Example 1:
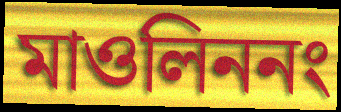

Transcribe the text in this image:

মাওলিননং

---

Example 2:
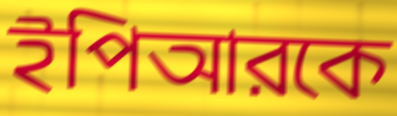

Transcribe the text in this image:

ইপিআরকে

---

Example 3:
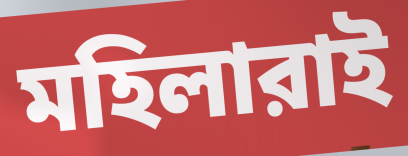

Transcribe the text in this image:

মহিলারাই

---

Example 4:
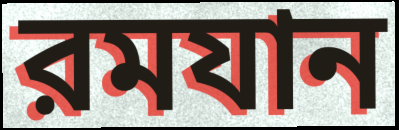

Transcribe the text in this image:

রমযান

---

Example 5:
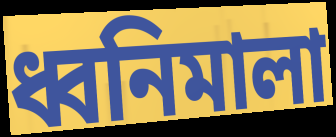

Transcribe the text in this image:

ধ্বনিমালা